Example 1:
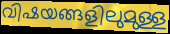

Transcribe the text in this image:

വിഷയങ്ങളിലുമുള്ള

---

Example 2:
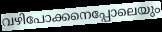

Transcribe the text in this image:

വഴിപോക്കനെപ്പോലെയും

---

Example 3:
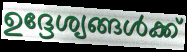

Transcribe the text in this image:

ഉദ്ദേശ്യങ്ങൾക്ക്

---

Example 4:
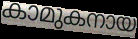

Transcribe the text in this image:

കാമുകനായ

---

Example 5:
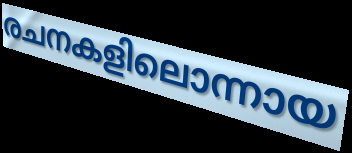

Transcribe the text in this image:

രചനകളിലൊന്നായ